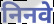
निनवे